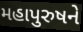
મહાપુરુષને